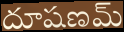
దూషణమ్